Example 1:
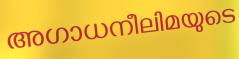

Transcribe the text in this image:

അഗാധനീലിമയുടെ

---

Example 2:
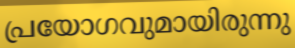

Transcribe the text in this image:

പ്രയോഗവുമായിരുന്നു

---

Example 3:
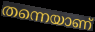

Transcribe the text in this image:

തന്നെയാണ്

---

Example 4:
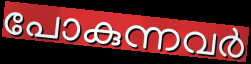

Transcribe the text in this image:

പോകുന്നവർ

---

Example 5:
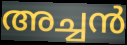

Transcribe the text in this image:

അച്ചൻ